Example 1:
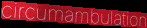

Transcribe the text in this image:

circumambulation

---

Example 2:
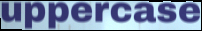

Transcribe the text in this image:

uppercase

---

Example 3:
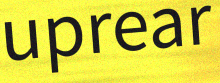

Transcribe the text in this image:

uprear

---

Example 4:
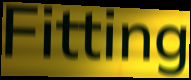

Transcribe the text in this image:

Fitting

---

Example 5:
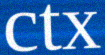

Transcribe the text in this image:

ctx